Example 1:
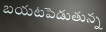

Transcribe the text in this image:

బయటపెడుతున్న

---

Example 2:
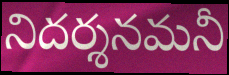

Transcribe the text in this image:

నిదర్శనమనీ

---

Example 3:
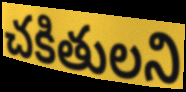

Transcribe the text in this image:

చకితులని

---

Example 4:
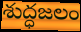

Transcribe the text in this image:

శుద్ధజలం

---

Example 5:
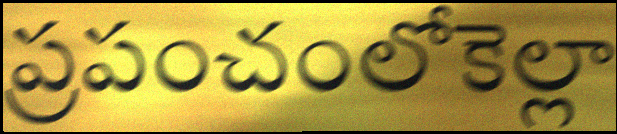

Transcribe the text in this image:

ప్రపంచంలోకెల్లా